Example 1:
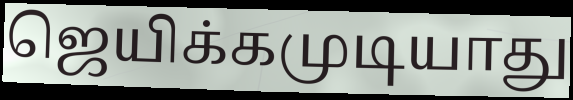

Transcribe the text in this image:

ஜெயிக்கமுடியாது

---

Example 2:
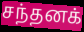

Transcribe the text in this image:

சந்தனக்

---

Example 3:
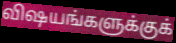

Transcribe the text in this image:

விஷயங்களுக்குக்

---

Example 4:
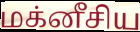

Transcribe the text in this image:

மக்னீசிய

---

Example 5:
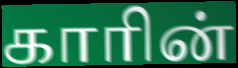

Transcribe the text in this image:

காரின்